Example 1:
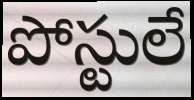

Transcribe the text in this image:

పోస్టులే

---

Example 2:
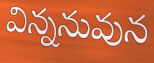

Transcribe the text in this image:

విన్ననువున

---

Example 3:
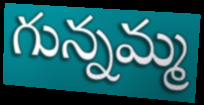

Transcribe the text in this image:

గున్నమ్మ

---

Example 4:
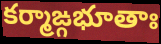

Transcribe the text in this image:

కర్మాఙ్గభూతాః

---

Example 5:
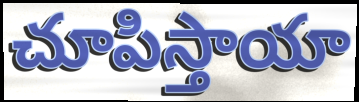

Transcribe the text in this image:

చూపిస్తాయా